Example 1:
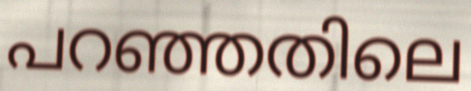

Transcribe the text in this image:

പറഞ്ഞതിലെ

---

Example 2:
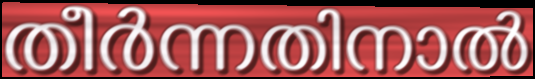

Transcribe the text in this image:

തീർന്നതിനാൽ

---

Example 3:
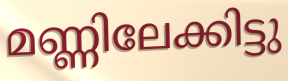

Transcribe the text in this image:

മണ്ണിലേക്കിട്ടു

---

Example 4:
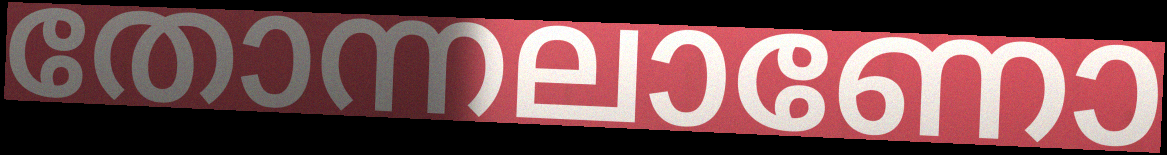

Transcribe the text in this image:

തോന്നലാണോ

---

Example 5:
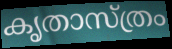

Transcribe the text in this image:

കൃതാസ്ത്രം